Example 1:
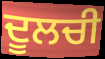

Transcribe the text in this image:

ਦੂਲਚੀ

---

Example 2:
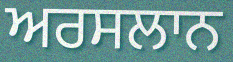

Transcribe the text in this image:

ਅਰਸਲਾਨ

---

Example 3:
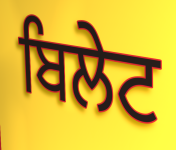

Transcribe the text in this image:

ਬਿਲੇਟ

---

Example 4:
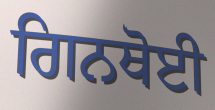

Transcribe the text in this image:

ਗਿਨਥੋਈ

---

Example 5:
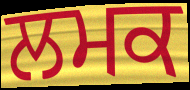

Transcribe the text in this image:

ਲਮਕ